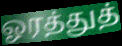
ஓரத்துத்